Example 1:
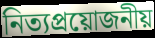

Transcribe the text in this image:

নিত্যপ্রয়োজনীয়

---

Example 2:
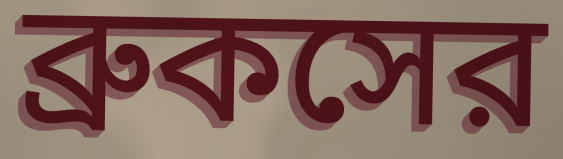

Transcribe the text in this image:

ব্রুকসের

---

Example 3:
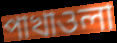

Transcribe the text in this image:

পাখাওলা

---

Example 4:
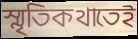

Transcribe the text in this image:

স্মৃতিকথাতেই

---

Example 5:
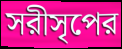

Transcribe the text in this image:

সরীসৃপের